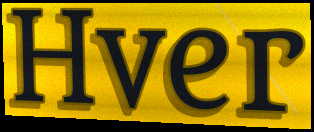
Hver